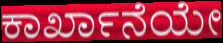
ಕಾರ್ಖಾನೆಯೇ